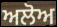
ਅਲੋਅ